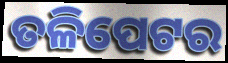
ତଳିପେଟର